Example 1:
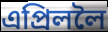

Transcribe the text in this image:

এপ্ৰিললৈ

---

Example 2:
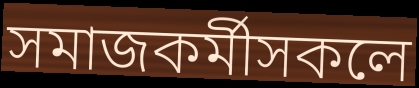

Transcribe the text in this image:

সমাজকৰ্মীসকলে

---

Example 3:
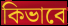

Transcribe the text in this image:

কিভাবে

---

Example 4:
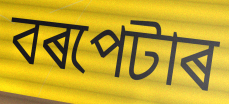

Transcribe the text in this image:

বৰপেটাৰ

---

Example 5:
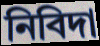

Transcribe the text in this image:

নিবিদা